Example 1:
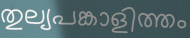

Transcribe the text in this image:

തുല്യപങ്കാളിത്തം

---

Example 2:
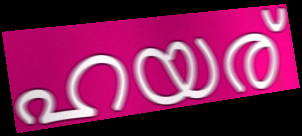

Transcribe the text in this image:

ഹയര്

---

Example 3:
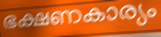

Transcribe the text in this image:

ഭക്ഷണകാര്യം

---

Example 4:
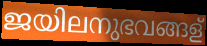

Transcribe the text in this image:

ജയിലനുഭവങ്ങള്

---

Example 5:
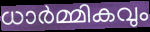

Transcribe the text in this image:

ധാർമ്മികവും